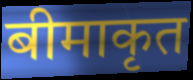
बीमाकृत